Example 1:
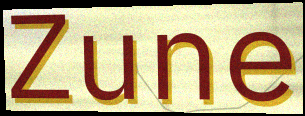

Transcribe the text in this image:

Zune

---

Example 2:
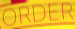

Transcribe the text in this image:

ORDER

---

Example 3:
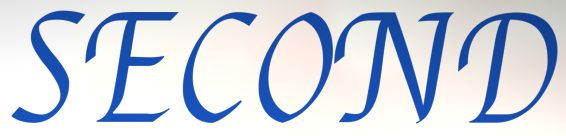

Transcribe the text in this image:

SECOND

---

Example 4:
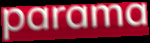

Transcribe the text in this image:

parama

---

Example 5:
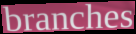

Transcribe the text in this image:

branches